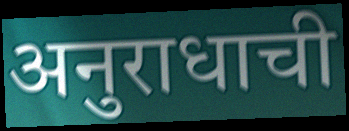
अनुराधाची